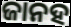
ଜାନହ